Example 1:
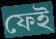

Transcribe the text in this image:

ফেই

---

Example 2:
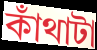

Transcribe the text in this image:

কাঁথাটা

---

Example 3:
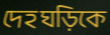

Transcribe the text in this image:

দেহঘড়িকে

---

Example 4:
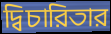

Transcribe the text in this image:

দ্বিচারিতার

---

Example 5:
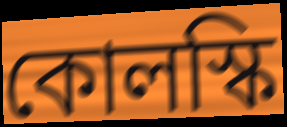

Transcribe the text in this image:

কোলস্কি